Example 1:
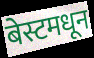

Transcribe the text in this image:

बेस्टमधून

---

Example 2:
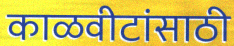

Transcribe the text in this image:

काळवीटांसाठी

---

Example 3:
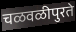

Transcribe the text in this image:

चळवळीपुरते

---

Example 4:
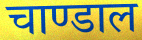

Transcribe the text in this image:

चाण्डाल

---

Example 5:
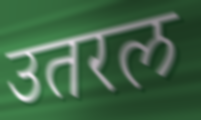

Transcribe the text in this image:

उतरल